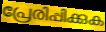
പ്രേരിപ്പിക്കുക